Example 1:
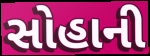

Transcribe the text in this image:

સોહાની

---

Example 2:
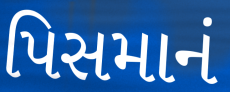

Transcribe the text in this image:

પિસમાનં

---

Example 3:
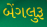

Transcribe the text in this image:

બેંગલુરૂ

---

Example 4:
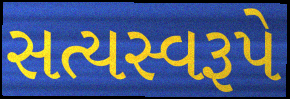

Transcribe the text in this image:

સત્યસ્વરૂપે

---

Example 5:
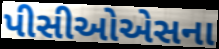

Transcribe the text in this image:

પીસીઓએસના